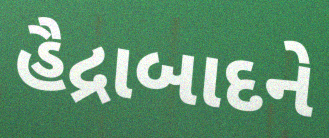
હૈદ્રાબાદને